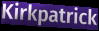
Kirkpatrick